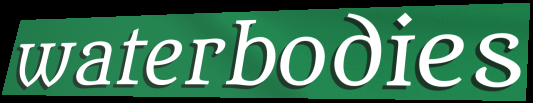
waterbodies